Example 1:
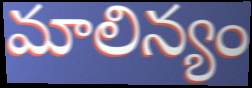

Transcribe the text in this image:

మాలిన్యం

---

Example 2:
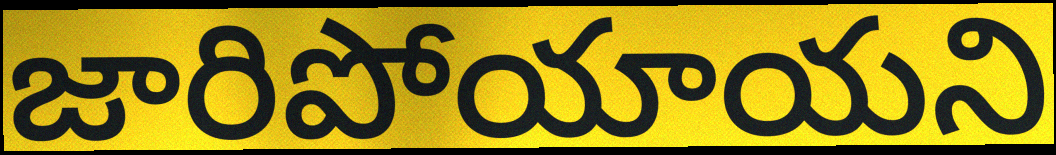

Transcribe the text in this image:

జారిపోయాయని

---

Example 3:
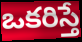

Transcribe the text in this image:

ఒకరిస్తే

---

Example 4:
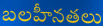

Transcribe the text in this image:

బలహీనతలు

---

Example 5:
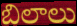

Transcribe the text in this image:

బిలాలు